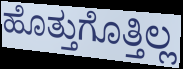
ಹೊತ್ತುಗೊತ್ತಿಲ್ಲ